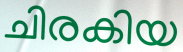
ചിരകിയ